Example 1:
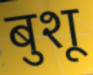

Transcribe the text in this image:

बुशू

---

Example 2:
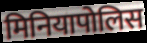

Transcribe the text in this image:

मिनियापोलिस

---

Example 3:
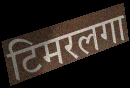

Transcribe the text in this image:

टिमरलगा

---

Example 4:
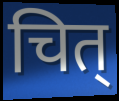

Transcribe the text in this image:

चित्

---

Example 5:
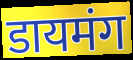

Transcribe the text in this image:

डायमंग